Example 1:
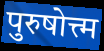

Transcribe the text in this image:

पुरुषोत्त्म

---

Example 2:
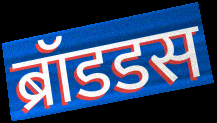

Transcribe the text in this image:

ब्रॉडडस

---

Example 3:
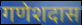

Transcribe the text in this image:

गणेशदास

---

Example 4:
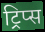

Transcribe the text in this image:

ट्रिप्स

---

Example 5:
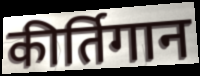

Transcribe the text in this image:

कीर्तिगान